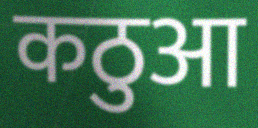
कठुआ